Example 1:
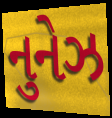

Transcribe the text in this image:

નુનેઝ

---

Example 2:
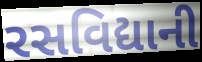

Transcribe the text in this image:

રસવિદ્યાની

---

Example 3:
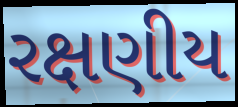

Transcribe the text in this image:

રક્ષણીય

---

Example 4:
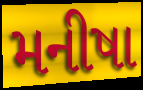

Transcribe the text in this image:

મનીષા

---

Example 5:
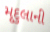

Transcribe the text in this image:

મૃદુલાની